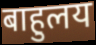
बाहुलय